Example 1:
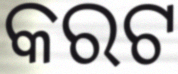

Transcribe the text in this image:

କରଟ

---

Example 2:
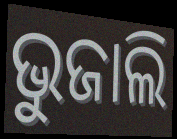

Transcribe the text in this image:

ଭୁଜାଲି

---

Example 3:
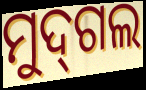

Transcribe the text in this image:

ମୁଦ୍‌ଗଲ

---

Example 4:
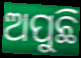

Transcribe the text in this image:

ଅପୁଛି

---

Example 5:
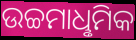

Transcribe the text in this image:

ଉଚ୍ଚମାଧୢମିକ